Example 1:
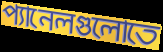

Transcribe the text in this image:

প্যানেলগুলোতে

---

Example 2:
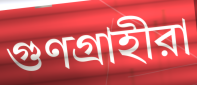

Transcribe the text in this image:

গুণগ্রাহীরা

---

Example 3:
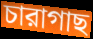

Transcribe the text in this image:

চারাগাছ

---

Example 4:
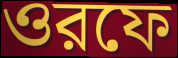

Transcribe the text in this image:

ওরফে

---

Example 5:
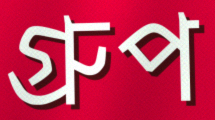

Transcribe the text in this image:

গ্রুপ